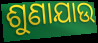
ଶୁଣାଯାଉ